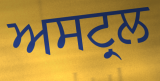
ਅਸਟ੍ਰਲ